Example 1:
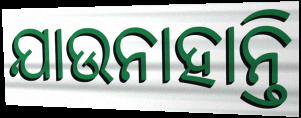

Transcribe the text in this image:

ଯାଉନାହାନ୍ତି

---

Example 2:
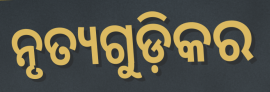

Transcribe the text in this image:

ନୃତ୍ୟଗୁଡ଼ିକର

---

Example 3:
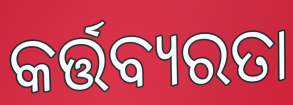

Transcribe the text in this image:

କର୍ତ୍ତବ୍ୟରତା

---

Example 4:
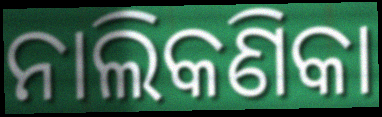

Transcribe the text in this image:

ନାଲିକଣିକା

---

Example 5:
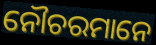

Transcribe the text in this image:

ନୌଚରମାନେ